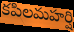
కపిలమహర్షి